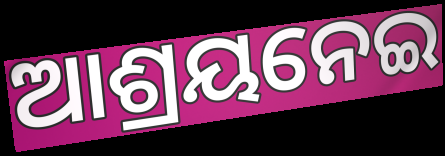
ଆଶ୍ରୟନେଇ